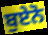
ਬੁਏਨੋ